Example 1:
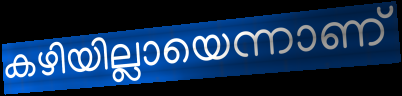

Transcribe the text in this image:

കഴിയില്ലായെന്നാണ്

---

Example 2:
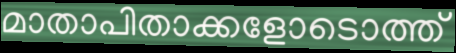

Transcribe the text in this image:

മാതാപിതാക്കളോടൊത്ത്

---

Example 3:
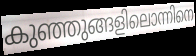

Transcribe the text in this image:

കുഞ്ഞുങ്ങളിലൊന്നിനെ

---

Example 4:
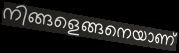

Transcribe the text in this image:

നിങ്ങളെങ്ങനെയാണ്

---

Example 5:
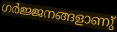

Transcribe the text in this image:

ഗർജ്ജനങ്ങളാണു്